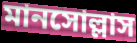
মানসোল্লাস